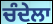
ਚੰਦੇਲਾ